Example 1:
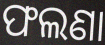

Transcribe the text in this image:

ଫଲଣା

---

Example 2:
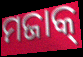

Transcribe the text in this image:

ମଜାକ୍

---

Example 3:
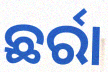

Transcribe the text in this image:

ଛର୍ରା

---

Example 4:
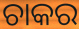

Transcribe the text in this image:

ଚାକର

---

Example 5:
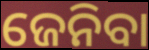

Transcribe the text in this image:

ଜେନିବା